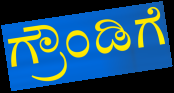
ಗ್ರೌಂಡಿಗೆ